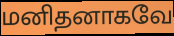
மனிதனாகவே